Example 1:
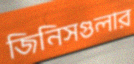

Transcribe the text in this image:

জিনিসগুলার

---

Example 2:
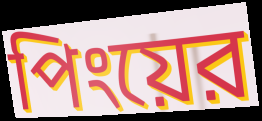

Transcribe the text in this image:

পিংয়ের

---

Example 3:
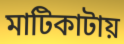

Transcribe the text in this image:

মাটিকাটায়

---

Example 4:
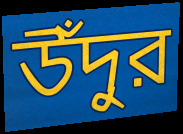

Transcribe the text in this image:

উঁদুর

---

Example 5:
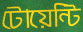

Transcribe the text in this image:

টোয়েন্টি